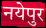
नयेपुर